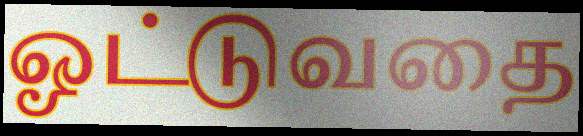
ஓட்டுவதை